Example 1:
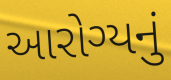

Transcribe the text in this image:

આરોગ્યનું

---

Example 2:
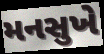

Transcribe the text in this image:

મનસુખે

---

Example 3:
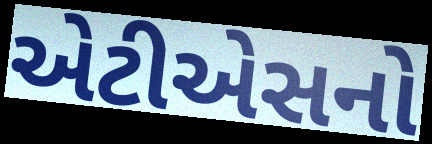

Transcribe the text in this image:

એટીએસનો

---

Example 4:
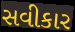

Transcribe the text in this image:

સવીકાર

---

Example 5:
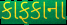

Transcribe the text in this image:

કાફકાના